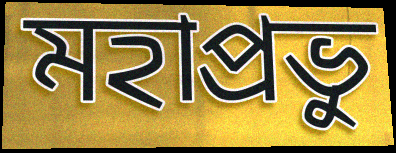
মহাপ্রভু